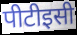
पीटीइसी